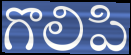
గొలిపి